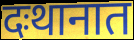
दःथानात